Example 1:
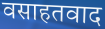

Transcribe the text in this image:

वसाहतवाद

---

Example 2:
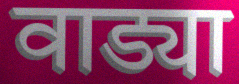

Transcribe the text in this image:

वाड्या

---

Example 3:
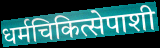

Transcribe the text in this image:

धर्मचिकित्सेपाशी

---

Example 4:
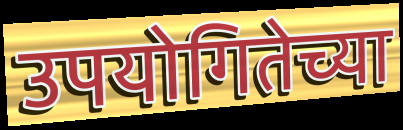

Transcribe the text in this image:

उपयोगितेच्या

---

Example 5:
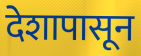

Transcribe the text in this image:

देशापासून